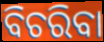
ବିଚରିବା